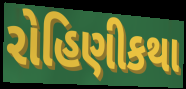
રોહિણીકથા